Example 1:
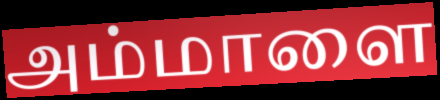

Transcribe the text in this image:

அம்மாளை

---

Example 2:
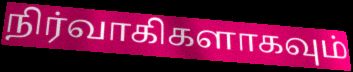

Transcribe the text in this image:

நிர்வாகிகளாகவும்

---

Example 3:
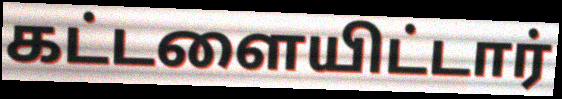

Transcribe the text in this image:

கட்டளையிட்டார்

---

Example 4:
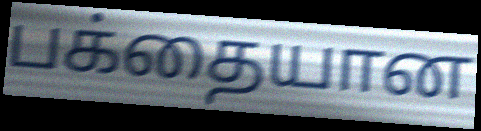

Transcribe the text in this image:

பக்தையான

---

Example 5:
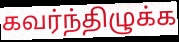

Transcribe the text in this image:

கவர்ந்திழுக்க